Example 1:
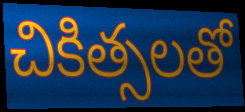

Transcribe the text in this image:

చికిత్సలతో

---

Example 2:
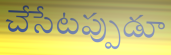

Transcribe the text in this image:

చేసేటప్పుడూ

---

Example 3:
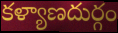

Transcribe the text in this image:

కళ్యాణదుర్గం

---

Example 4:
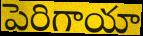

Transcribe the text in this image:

పెరిగాయా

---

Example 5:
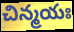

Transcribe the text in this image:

చిన్మయః